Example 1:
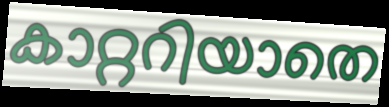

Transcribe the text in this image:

കാറ്ററിയാതെ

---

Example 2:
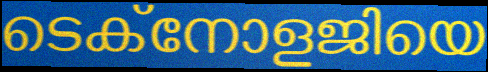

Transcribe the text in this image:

ടെക്‌നോളജിയെ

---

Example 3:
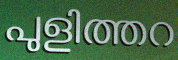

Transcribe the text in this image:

പുളിത്തറ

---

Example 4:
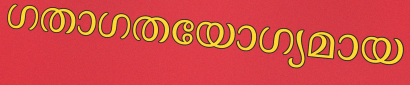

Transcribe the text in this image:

ഗതാഗതയോഗ്യമായ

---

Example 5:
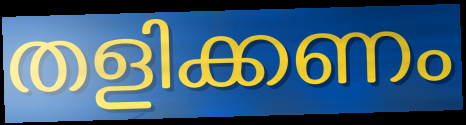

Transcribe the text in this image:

തളിക്കണം